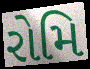
રોમિ